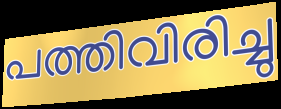
പത്തിവിരിച്ചു